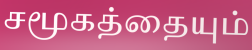
சமூகத்தையும்